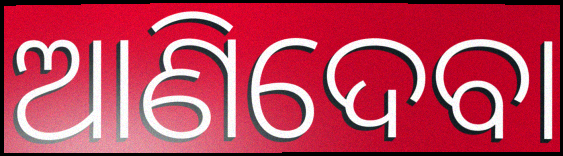
ଆଣିଦେବା